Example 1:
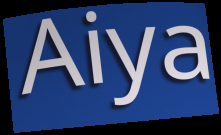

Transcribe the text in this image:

Aiya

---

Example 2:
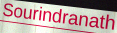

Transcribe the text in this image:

Sourindranath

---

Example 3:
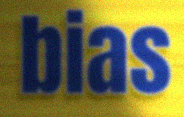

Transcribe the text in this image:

bias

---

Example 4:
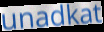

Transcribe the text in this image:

unadkat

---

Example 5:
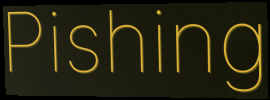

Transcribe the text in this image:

Pishing